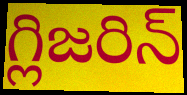
గ్లిజరిన్